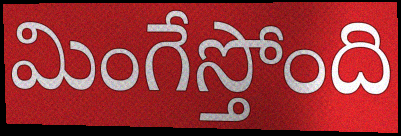
మింగేస్తోంది